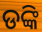
ଡଙ୍କି